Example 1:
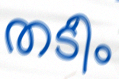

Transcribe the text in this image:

തടീം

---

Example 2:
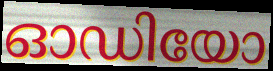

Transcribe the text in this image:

ഓഡിയോ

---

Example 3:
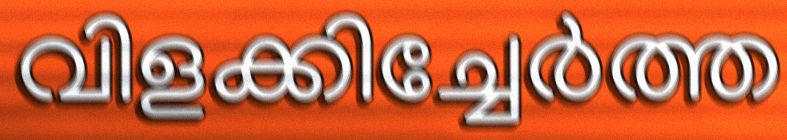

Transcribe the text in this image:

വിളക്കിച്ചേർത്ത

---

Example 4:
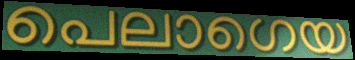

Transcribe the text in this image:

പെലാഗെയ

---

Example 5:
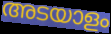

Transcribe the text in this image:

അടയാളം